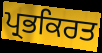
ਪ੍ਰਭਕਿਰਤ